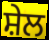
ਸ਼ੇਲ